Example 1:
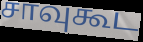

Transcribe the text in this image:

சாவுகூட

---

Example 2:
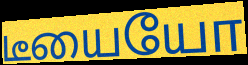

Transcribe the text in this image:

டீயையோ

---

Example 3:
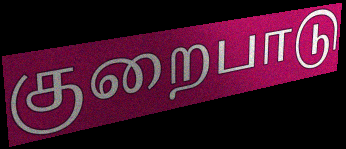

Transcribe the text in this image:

குறைபாடு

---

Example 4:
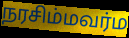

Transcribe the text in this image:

நரசிம்மவர்ம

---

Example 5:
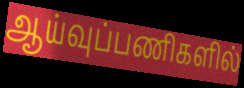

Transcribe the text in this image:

ஆய்வுப்பணிகளில்